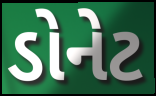
ડોનેટ